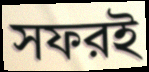
সফরই